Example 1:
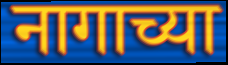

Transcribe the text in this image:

नागाच्या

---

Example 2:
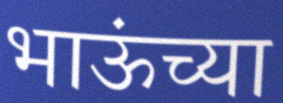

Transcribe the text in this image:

भाऊंच्या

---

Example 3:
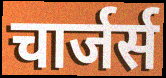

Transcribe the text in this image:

चार्जर्स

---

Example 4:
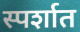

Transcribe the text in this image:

स्पर्शात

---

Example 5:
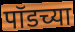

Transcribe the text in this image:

पॉडच्या